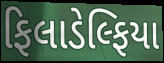
ફિલાડેલ્ફિયા